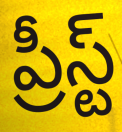
ప్రీస్ట్